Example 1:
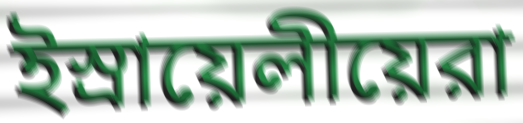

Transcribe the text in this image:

ইস্রায়েলীয়েরা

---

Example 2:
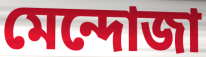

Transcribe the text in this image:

মেন্দোজা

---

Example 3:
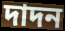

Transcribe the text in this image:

দাদন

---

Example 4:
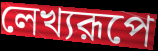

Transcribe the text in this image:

লেখ্যরূপে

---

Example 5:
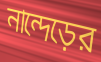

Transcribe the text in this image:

নান্দেড়ের